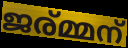
ജര്മ്മന്